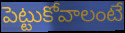
పెట్టుకోవాలంటే